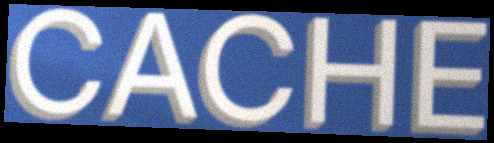
CACHE